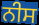
ਨੀਸ